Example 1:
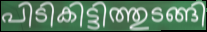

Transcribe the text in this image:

പിടികിട്ടിത്തുടങ്ങി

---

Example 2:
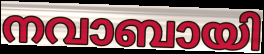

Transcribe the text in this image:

നവാബായി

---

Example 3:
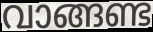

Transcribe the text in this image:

വാങ്ങണ്ട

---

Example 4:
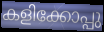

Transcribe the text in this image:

കളിക്കോപ്പു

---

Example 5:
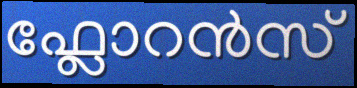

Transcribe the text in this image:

ഫ്ലോറൻസ്